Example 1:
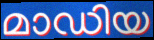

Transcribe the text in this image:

മാഡിയ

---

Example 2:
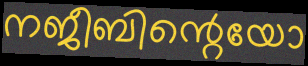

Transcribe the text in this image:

നജീബിന്റെയോ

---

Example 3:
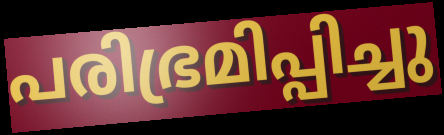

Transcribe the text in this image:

പരിഭ്രമിപ്പിച്ചു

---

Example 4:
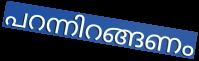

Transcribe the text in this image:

പറന്നിറങ്ങണം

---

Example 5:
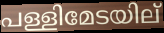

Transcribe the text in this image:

പള്ളിമേടയില്